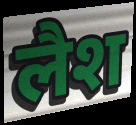
लैश